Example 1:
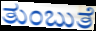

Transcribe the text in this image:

ತುಂಬುತೆ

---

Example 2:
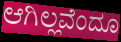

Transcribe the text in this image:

ಆಗಿಲ್ಲವೆಂದೂ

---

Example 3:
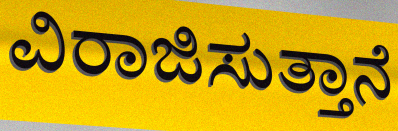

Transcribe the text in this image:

ವಿರಾಜಿಸುತ್ತಾನೆ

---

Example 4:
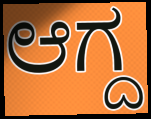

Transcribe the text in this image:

ಆಗ್ದ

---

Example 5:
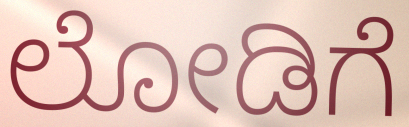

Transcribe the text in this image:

ಲೋಡಿಗೆ